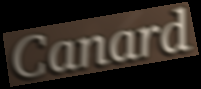
Canard